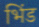
भिंड